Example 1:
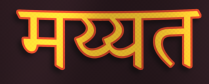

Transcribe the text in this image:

मय्यत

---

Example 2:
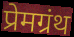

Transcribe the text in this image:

प्रेमग्रंथ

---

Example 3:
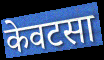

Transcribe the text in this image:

केवटसा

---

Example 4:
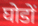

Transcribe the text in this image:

घोडों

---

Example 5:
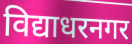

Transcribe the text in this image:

विद्याधरनगर